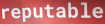
reputable